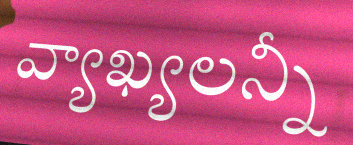
వ్యాఖ్యలన్నీ